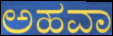
ಅಹವಾ